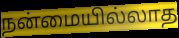
நன்மையில்லாத